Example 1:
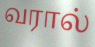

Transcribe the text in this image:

வரால்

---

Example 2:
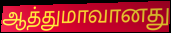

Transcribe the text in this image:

ஆத்துமாவானது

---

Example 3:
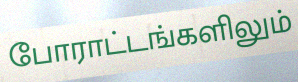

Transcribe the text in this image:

போராட்டங்களிலும்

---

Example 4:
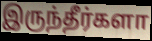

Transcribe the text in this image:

இருந்தீர்களா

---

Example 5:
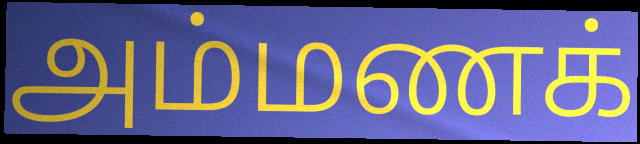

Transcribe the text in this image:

அம்மணக்